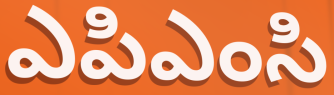
ఎపిఎంసి